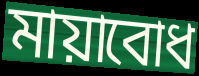
মায়াবোধ